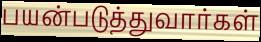
பயன்படுத்துவார்கள்